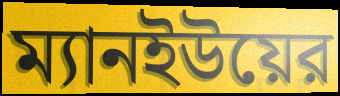
ম্যানইউয়ের